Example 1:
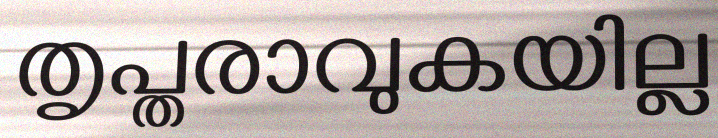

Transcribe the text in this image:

തൃപ്തരാവുകയില്ല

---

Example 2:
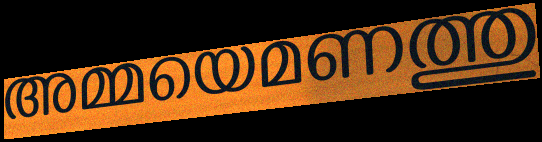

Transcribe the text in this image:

അമ്മയെമണത്തു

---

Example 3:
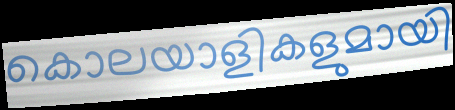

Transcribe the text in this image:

കൊലയാളികളുമായി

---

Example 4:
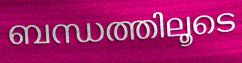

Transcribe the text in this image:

ബന്ധത്തിലൂടെ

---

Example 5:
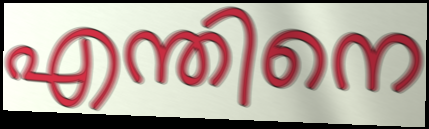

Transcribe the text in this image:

എന്തിനെ